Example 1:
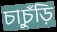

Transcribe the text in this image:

চাচুঁড়ি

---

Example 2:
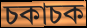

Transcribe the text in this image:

চকাচক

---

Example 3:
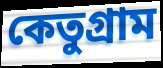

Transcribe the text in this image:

কেতুগ্রাম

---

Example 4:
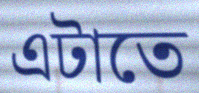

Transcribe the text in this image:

এটাতে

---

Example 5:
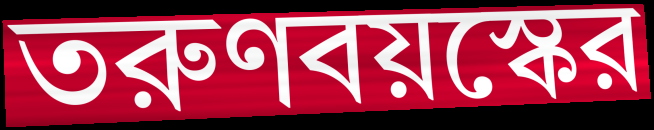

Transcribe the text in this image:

তরুণবয়স্কের